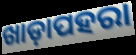
ଖାଡ଼ାପହରା